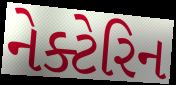
નેક્ટેરિન